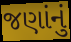
જણાંનું